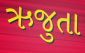
ઋજુતા